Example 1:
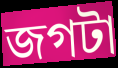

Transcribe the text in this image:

জগটা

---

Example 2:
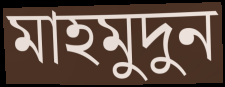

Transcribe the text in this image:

মাহমুদুন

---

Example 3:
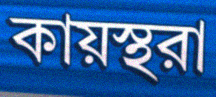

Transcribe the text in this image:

কায়স্থরা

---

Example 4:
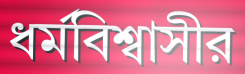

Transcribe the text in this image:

ধর্মবিশ্বাসীর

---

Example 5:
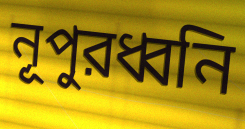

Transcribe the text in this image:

নূপুরধ্বনি